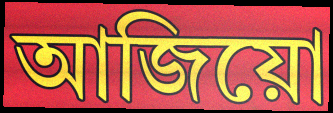
আজিয়ো